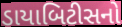
ડાયાબિટીસનો